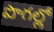
పొగల్లో